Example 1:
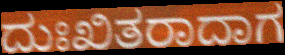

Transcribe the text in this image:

ದುಃಖಿತರಾದಾಗ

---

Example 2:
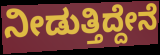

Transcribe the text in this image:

ನೀಡುತ್ತಿದ್ದೇನೆ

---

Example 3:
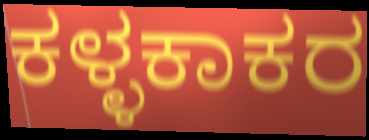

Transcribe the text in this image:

ಕಳ್ಳಕಾಕರ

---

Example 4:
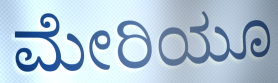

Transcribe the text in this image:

ಮೇರಿಯೂ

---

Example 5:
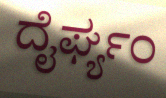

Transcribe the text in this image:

ದೈರ್ಘ್ಯಂ